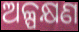
ଅଳ୍ପକ୍ଷଣ